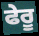
ਫੇਰੂ